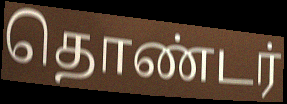
தொண்டர்